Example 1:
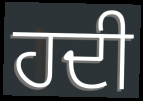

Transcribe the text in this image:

ਹਦੀ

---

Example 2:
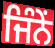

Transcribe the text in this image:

ਜਿੰਨੇਂ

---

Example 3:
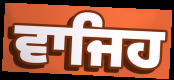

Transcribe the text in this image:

ਵਾਜਿਹ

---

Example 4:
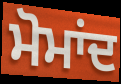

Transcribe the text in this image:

ਮੋਮਾਂਦ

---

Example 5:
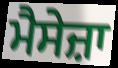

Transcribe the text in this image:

ਮੈਸੇਜ਼ਾ